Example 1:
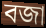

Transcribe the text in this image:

বজা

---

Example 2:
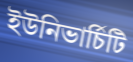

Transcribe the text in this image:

ইউনিভাৰ্চিটি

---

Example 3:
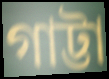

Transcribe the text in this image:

গাট্টা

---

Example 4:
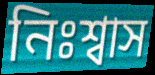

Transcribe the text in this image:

নিঃশ্বাস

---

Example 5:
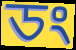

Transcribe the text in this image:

ডং